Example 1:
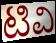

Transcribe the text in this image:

ಟಿವಿ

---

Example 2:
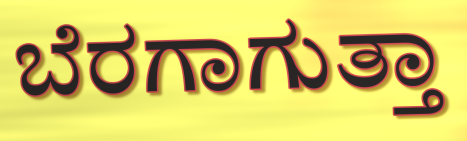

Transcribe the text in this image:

ಬೆರಗಾಗುತ್ತಾ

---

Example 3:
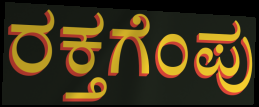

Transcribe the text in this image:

ರಕ್ತಗೆಂಪು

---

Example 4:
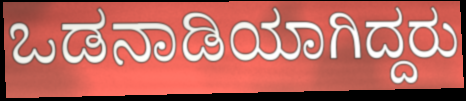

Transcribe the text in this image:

ಒಡನಾಡಿಯಾಗಿದ್ದರು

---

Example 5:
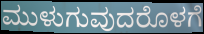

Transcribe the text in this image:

ಮುಳುಗುವುದರೊಳಗೆ